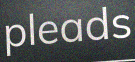
pleads